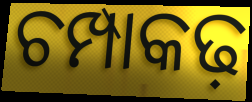
ଚମ୍ପାକଢ଼